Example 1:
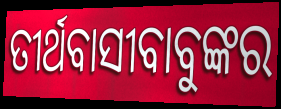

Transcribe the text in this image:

ତୀର୍ଥବାସୀବାବୁଙ୍କର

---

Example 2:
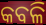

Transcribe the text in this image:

କବଳି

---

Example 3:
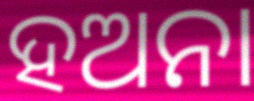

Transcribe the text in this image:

ହଅନା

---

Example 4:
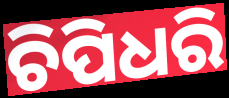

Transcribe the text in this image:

ଚିପିଧରି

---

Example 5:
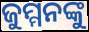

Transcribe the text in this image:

ଜୁମ୍ମନଙ୍କୁ